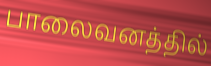
பாலைவனத்தில்